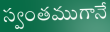
స్వంతముగానే